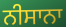
ਨੀਸਾਨਾ